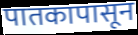
पातकापासून